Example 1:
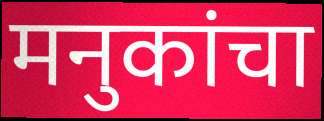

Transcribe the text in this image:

मनुकांचा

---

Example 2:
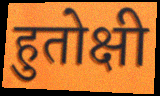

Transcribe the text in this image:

हुतोक्षी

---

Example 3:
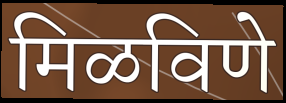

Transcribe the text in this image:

मिळविणे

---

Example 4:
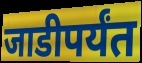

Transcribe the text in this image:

जाडीपर्यंत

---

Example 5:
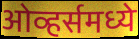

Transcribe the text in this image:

ओव्हर्समध्ये